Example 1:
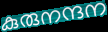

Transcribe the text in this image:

കുരുനന്ദന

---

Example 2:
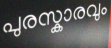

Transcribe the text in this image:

പുരസ്കാരവും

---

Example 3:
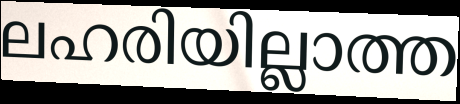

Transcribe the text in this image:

ലഹരിയില്ലാത്ത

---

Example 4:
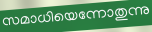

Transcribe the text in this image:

സമാധിയെന്നോതുന്നു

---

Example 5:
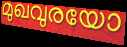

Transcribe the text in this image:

മുഖവുരയോ